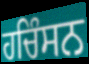
ਹਚਿੰਸਨ